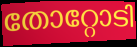
തോറ്റോടി